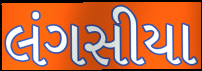
લંગસીયા